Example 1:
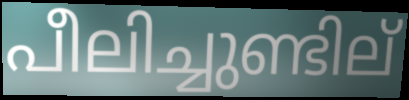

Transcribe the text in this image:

പീലിച്ചുണ്ടില്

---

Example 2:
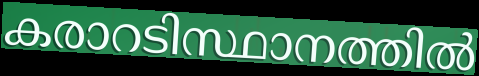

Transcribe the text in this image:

കരാറടിസ്ഥാനത്തിൽ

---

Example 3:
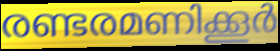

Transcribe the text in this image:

രണ്ടരമണിക്കൂർ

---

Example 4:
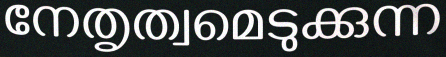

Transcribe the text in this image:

നേതൃത്വമെടുക്കുന്ന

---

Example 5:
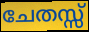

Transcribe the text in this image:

ചേതസ്സ്